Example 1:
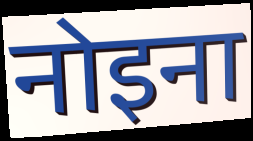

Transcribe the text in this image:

नोइना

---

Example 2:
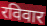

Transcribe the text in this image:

रविवार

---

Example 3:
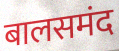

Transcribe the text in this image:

बालसमंद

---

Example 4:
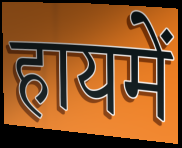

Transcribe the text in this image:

हायमें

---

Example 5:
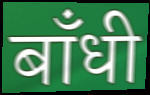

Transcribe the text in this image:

बाँधी